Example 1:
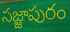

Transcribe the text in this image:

సజ్జాపురం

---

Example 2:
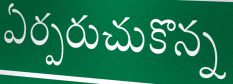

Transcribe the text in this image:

ఏర్పరుచుకొన్న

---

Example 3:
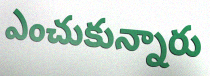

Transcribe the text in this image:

ఎంచుకున్నారు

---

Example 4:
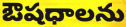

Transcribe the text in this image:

ఔషధాలను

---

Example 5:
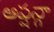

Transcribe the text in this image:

ఆప్షన్గా